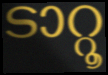
ടാറ്റൂ